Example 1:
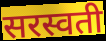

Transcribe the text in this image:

सरस्वती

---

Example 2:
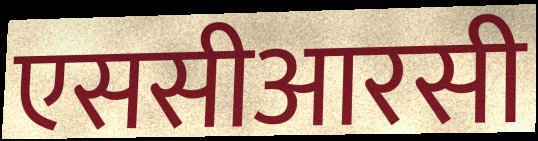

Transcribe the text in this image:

एससीआरसी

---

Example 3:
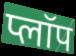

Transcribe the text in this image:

प्लॉप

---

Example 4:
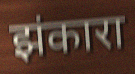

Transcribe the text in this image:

झंकारा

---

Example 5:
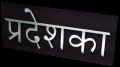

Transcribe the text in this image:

प्रदेशका